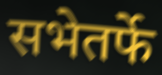
सभेतर्फे